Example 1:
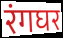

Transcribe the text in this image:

रंगघर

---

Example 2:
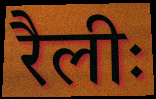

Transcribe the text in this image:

रैलीः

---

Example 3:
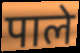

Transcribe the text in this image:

पाले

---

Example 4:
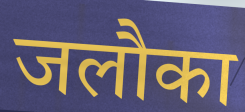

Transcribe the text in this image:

जलौका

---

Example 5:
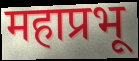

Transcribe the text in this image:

महाप्रभू